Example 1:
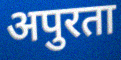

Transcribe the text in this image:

अपुरता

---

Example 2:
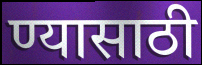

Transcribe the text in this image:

ण्यासाठी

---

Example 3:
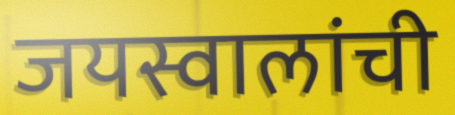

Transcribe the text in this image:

जयस्वालांची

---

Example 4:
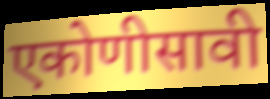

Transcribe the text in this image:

एकोणीसावी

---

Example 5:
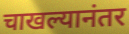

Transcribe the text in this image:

चाखल्यानंतर